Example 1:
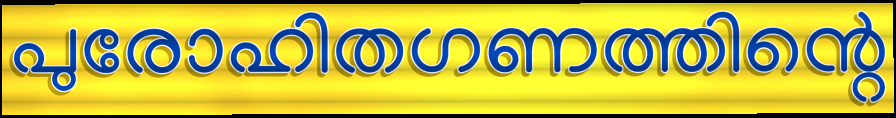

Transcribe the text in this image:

പുരോഹിതഗണത്തിന്റെ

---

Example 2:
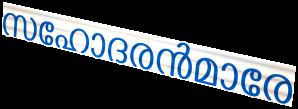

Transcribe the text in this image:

സഹോദരൻമാരേ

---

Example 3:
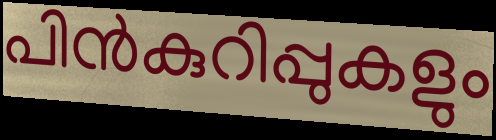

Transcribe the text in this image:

പിൻകുറിപ്പുകളും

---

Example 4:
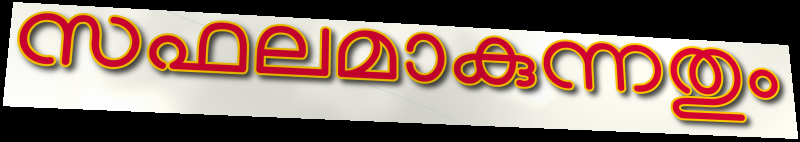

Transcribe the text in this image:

സഫലമാകുന്നതും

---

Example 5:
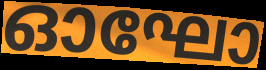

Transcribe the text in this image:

ഓഘോ